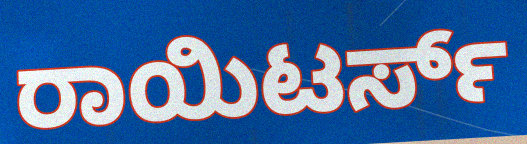
ರಾಯಿಟರ್ಸ್